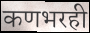
कणभरही